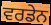
ਵਰਡੇਨ